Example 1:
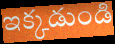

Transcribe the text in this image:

ఇక్కడుండి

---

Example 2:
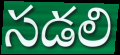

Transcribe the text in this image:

సడలి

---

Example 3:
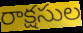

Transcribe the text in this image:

రాక్షసుల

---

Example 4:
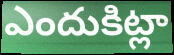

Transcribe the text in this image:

ఎందుకిట్లా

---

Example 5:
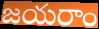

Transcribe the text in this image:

జయరాం